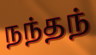
நந்தந்